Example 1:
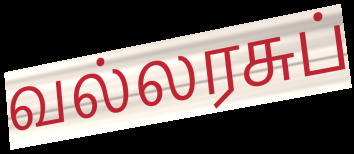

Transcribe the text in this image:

வல்லரசுப்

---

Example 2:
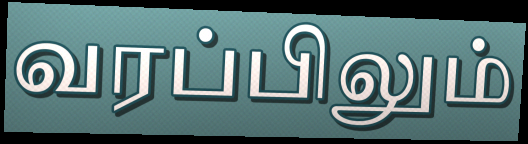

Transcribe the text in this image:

வரப்பிலும்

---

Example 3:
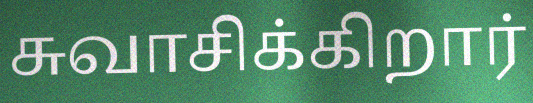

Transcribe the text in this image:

சுவாசிக்கிறார்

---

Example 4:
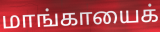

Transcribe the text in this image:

மாங்காயைக்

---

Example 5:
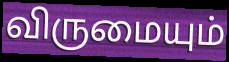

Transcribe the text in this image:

விருமையும்